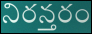
నిరన్తరం